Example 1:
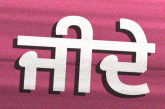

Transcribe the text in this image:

ਜੀਦੇ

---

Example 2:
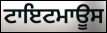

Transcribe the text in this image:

ਟਾਇਟਮਾਊਸ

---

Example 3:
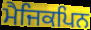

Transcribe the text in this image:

ਮੈਜਿਕਪਿਨ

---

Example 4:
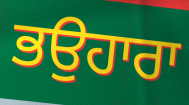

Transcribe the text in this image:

ਭਉਹਾਰਾ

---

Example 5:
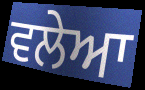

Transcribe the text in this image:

ਵਲੇਆ